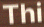
Thi